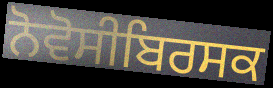
ਨੋਵੋਸੀਬਿਰਸਕ